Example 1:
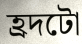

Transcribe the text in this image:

হ্ৰদটো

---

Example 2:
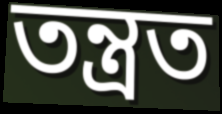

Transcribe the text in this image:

তন্ত্ৰত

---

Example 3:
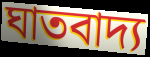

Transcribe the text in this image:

ঘাতবাদ্য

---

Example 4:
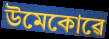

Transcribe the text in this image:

উমেকোৱে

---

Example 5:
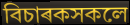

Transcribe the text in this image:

বিচাৰকসকলে